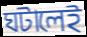
ঘটালেই